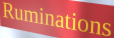
Ruminations